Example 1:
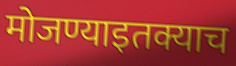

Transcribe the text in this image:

मोजण्याइतक्याच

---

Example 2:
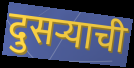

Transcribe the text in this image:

दुसऱ्याची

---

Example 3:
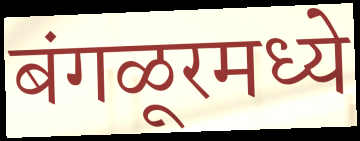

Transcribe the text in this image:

बंगळूरमध्ये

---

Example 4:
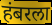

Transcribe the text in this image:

हंबरला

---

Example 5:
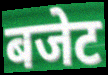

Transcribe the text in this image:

बजेट